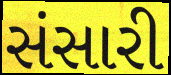
સંસારી